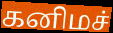
கனிமச்